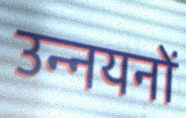
उन्नयनों